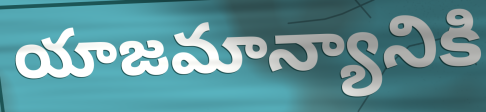
యాజమాన్యానికి